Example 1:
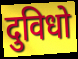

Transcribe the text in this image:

दुविधो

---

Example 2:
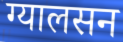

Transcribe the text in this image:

ग्यालसन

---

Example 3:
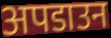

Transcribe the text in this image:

अपडाउन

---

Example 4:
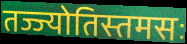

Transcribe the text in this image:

तज्ज्योतिस्तमसः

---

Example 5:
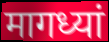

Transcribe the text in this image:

मागध्यां